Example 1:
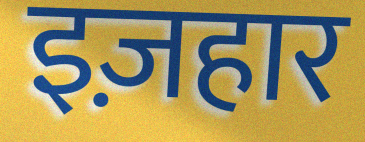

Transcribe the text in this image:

इज़हार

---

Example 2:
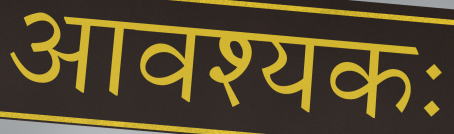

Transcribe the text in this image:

आवश्यकः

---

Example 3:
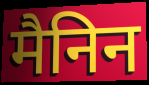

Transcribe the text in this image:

मैनिन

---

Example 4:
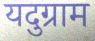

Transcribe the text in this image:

यदुग्राम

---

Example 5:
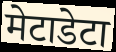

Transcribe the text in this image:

मेटाडेटा